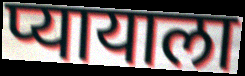
प्यायाला